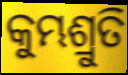
କୁମ୍ଭଶ୍ରୁତି